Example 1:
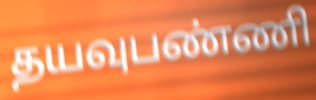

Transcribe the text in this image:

தயவுபண்ணி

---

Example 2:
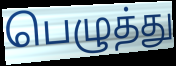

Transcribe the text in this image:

பெழுத்து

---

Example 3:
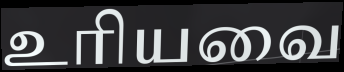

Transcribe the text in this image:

உரியவை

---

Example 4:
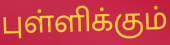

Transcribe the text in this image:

புள்ளிக்கும்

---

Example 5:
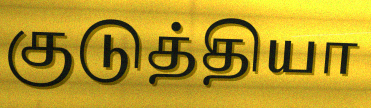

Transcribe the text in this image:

குடுத்தியா